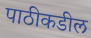
पाठीकडील